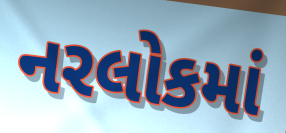
નરલોકમાં